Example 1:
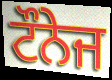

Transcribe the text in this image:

ਟੌਨੇਜ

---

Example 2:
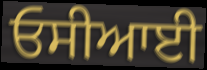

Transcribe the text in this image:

ਓਸੀਆਈ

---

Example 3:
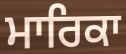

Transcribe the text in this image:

ਮਾਰਿਕਾ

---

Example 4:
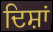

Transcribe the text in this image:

ਦਿਸ਼ਾਂ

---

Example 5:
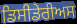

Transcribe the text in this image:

ਡਿਸੀਡੇਰੀਅਸ